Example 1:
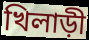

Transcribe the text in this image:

খিলাড়ী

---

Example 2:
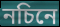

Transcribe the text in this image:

নচিনে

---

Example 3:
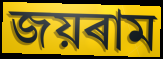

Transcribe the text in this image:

জয়ৰাম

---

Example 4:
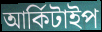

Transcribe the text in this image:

আৰ্কিটাইপ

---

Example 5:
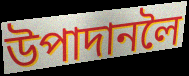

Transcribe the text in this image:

উপাদানলৈ